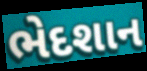
ભેદશાન